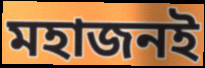
মহাজনই